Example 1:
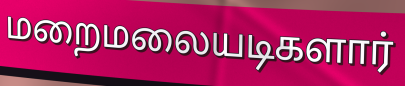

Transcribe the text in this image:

மறைமலையடிகளார்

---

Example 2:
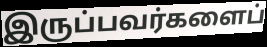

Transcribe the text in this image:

இருப்பவர்களைப்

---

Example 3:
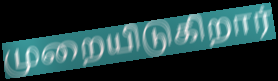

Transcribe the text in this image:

முறையிடுகிறார்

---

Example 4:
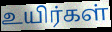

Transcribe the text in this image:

உயிர்கள்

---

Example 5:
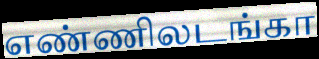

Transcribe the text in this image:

எண்ணிலடங்கா